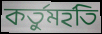
কর্তুমর্হতি